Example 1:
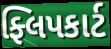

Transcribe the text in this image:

ફ્લિપકાર્ટ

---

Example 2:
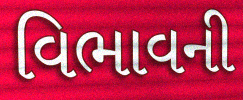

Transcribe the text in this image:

વિભાવની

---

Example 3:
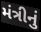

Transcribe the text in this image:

મંત્રીનું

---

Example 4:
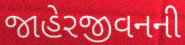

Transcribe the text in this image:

જાહેરજીવનની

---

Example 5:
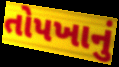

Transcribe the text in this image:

તોપખાનું